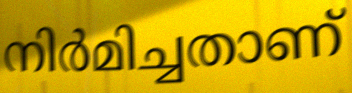
നിർമിച്ചതാണ്